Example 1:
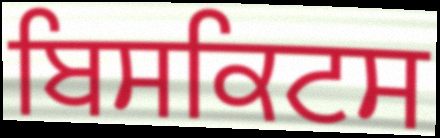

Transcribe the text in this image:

ਬਿਸਕਿਟਸ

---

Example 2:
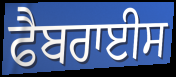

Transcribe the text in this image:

ਫੈਬਰਾਈਸ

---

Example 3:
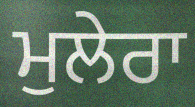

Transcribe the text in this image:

ਮੁਲੇਰਾ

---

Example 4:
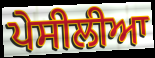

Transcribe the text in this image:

ਪੇਸੀਲੀਆ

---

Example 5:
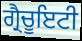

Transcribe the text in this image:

ਗ੍ਰੈਚੂਇਟੀ